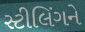
સ્ટીલિંગને